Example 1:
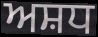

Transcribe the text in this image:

ਅਸ਼ਧ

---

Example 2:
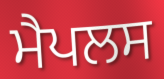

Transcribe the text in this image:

ਮੈਪਲਸ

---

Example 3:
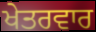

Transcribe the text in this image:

ਖੇਤਰਵਾਰ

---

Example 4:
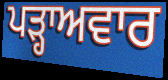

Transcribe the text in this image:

ਪੜ੍ਹਾਅਵਾਰ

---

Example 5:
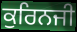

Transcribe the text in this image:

ਕੁਰਿਨਜੀ